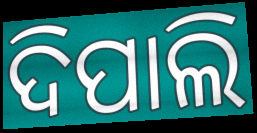
ଦିପାଲି